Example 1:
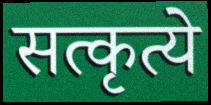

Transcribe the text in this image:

सत्कृत्ये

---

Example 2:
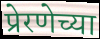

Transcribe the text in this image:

प्रेरणेच्या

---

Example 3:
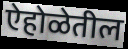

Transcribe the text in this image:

ऐहोळेतील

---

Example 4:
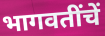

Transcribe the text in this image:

भागवतींचें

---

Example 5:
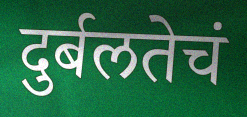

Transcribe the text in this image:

दुर्बलतेचं